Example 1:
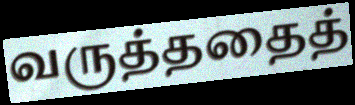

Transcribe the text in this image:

வருத்ததைத்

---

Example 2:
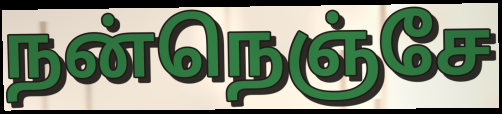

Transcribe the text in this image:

நன்நெஞ்சே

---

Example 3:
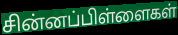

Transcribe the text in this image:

சின்னப்பிள்ளைகள்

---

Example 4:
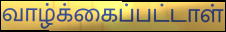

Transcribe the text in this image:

வாழ்க்கைப்பட்டாள்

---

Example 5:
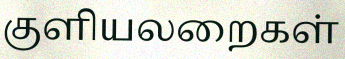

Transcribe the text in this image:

குளியலறைகள்